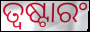
ତ୍ୱଷ୍ଟାରଂ